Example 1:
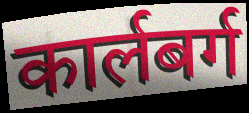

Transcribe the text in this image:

कार्लबर्ग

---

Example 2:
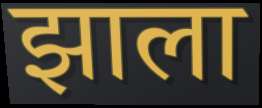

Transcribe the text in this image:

झाला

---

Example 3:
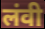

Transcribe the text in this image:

लंवी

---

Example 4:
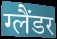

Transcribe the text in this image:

ग्लैंडर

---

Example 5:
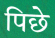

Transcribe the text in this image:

पिछे